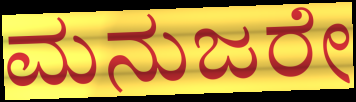
ಮನುಜರೇ